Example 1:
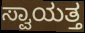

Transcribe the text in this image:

ಸ್ವಾಯತ್ತ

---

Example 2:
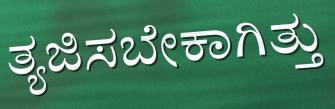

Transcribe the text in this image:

ತ್ಯಜಿಸಬೇಕಾಗಿತ್ತು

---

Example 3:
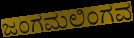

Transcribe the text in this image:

ಜಂಗಮಲಿಂಗವ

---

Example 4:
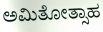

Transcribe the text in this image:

ಅಮಿತೋತ್ಸಾಹ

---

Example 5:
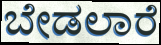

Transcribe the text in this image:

ಬೇಡಲಾರೆ